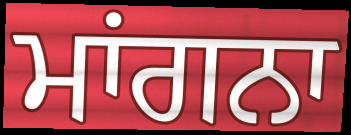
ਮਾਂਗਨਾ